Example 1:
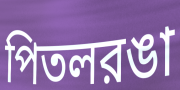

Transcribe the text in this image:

পিতলরঙা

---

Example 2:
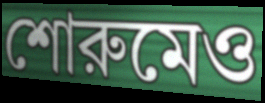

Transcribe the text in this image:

শোরুমেও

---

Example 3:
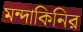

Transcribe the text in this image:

মন্দাকিনির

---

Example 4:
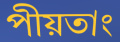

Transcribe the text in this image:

পীয়তাং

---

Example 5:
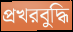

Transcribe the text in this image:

প্রখরবুদ্ধি